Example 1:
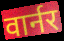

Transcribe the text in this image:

वार्नर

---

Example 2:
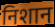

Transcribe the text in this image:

निशान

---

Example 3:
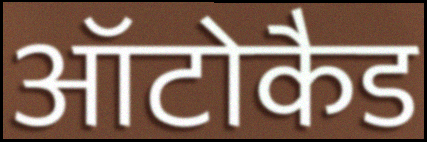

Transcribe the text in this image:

ऑटोकैड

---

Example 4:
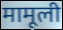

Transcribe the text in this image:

मामूली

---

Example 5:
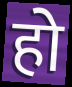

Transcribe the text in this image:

हो